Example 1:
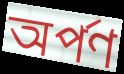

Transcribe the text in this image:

অর্পণ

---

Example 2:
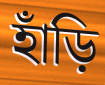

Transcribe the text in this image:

হাঁড়ি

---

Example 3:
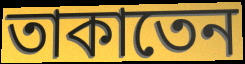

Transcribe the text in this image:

তাকাতেন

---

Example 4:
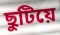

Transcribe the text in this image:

ছুটিয়ে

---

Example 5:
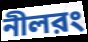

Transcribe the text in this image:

নীলরং